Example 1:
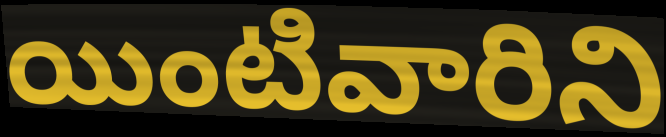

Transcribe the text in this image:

యింటివారిని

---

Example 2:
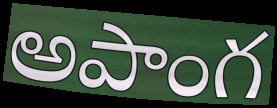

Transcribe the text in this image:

అపాంగ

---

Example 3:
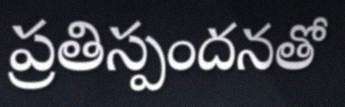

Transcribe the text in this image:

ప్రతిస్పందనతో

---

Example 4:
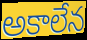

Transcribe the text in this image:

అకాలేన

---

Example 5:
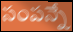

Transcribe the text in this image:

సంపన్నే